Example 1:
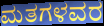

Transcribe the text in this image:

ಮತಗಳವರ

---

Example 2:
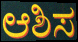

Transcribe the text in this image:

ಆಶಿಸ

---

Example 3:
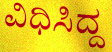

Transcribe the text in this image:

ವಿಧಿಸಿದ್ದ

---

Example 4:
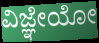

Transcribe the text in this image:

ವಿಜ್ಞೇಯೋ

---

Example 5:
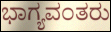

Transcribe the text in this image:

ಭಾಗ್ಯವಂತರು